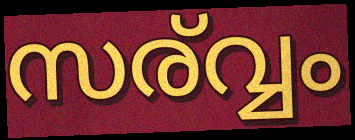
സര്വ്വം